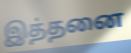
இத்தனை